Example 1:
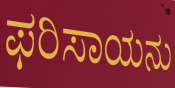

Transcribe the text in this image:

ಫರಿಸಾಯನು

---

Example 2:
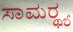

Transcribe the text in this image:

ಸಾಮರ್‍ಥ್ಯ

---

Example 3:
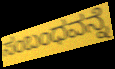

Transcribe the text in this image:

ಸಂಬಂಧವನ್ನೆ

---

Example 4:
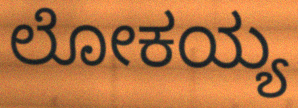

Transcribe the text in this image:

ಲೋಕಯ್ಯ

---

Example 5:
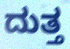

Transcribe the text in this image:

ದುತ್ತ